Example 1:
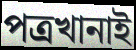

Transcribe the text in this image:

পত্রখানাই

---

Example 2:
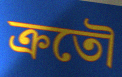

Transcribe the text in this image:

ক্রতৌ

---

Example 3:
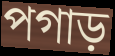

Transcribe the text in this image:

পগাড়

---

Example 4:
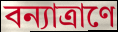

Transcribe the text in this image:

বন্যাত্রাণে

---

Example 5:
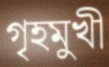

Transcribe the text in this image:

গৃহমুখী